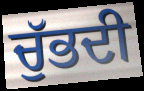
ਚੁੱਭਦੀ